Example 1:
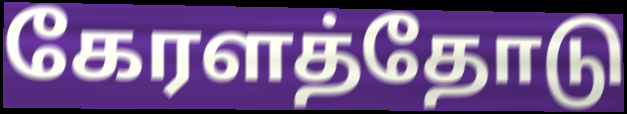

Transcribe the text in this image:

கேரளத்தோடு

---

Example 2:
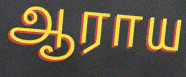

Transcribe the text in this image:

ஆராய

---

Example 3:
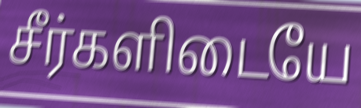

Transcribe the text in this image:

சீர்களிடையே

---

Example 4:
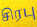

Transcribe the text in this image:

சிரபு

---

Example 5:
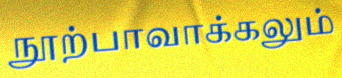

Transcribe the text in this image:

நூற்பாவாக்கலும்